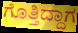
ಗೊತ್ತಿದ್ದಾಗ